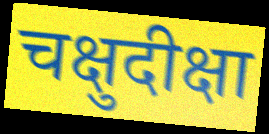
चक्षुदीक्षा